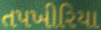
તપખીરિયા